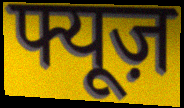
फ्यूज़